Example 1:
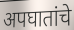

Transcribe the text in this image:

अपघातांचे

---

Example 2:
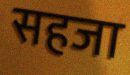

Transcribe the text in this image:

सहजा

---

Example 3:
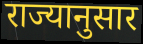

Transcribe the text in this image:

राज्यानुसार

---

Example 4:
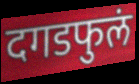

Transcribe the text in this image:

दगडफुलं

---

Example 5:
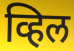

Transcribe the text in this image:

व्हिल